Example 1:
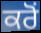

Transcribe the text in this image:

ਕਰੋਂ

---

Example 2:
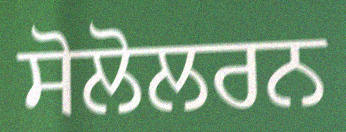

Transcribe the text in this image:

ਸੋਲੋਲਰਨ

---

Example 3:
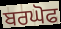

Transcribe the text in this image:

ਬਰਘੋਫ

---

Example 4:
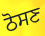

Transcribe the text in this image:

ਠੋਸਣ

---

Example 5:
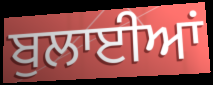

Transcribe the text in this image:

ਬੁਲਾਈਆਂ